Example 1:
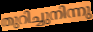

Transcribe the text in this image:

തുറിച്ചുനിന്നു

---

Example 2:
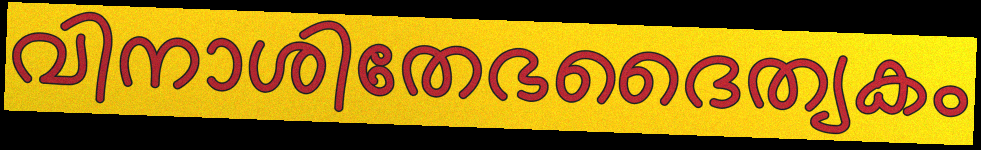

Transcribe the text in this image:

വിനാശിതേഭദൈത്യകം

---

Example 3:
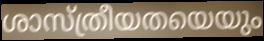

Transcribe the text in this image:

ശാസ്ത്രീയതയെയും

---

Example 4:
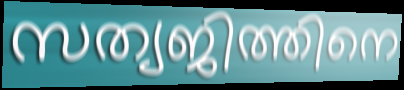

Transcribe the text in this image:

സത്യജിത്തിനെ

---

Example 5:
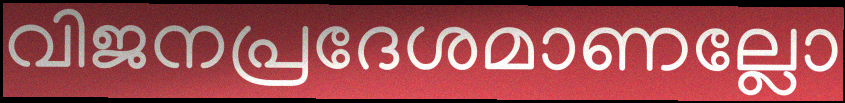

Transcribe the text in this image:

വിജനപ്രദേശമാണല്ലോ